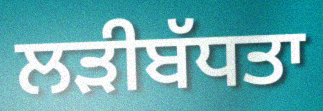
ਲੜੀਬੱਧਤਾ